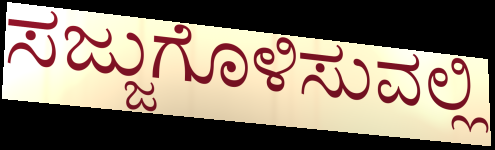
ಸಜ್ಜುಗೊಳಿಸುವಲ್ಲಿ